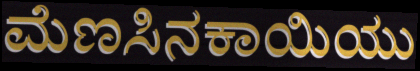
ಮೆಣಸಿನಕಾಯಿಯು